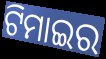
ଟିମାଇର